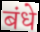
बंधे